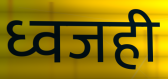
ध्वजही